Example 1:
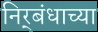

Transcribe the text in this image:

निर्बंधाच्या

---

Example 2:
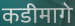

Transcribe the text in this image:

कडीमागे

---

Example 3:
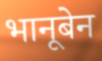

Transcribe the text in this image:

भानूबेन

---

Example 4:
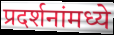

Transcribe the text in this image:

प्रदर्शनांमध्ये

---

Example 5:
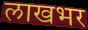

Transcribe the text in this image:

लाखभर